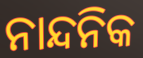
ନାନ୍ଦନିକ